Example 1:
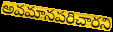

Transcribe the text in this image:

అవమానపరిచారని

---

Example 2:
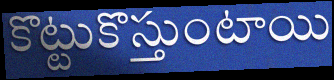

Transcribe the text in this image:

కొట్టుకొస్తుంటాయి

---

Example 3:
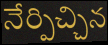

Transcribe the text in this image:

నేర్పిచ్చిన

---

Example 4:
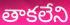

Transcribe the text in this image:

తాకలేని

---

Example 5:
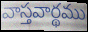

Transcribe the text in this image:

వాస్తవార్థము